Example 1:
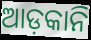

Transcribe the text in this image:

ଆଡ଼କାନି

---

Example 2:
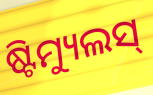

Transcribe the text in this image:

ଷ୍ଟିମ୍ୟୁଲସ୍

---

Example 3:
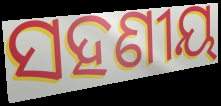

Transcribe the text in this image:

ସହଣୀୟ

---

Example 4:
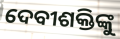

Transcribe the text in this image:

ଦେବୀଶକ୍ତିଙ୍କୁ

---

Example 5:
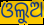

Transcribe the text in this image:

ଓଲୁଅ